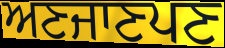
ਅਣਜਾਣਪਣ